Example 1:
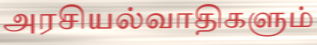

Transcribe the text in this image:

அரசியல்வாதிகளும்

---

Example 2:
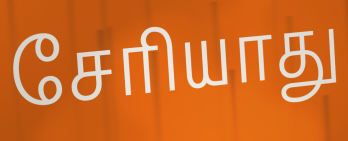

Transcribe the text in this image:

சேரியாது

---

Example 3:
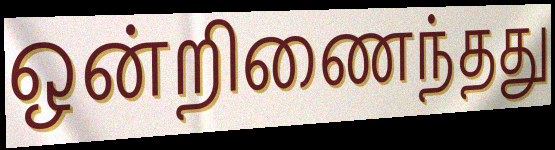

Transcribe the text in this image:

ஒன்றிணைந்தது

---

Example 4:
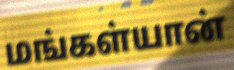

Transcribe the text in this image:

மங்கள்யான்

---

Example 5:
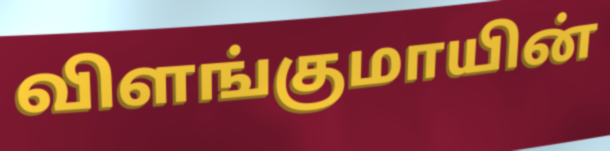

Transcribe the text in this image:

விளங்குமாயின்